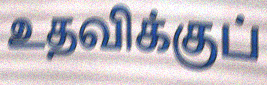
உதவிக்குப்